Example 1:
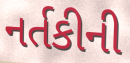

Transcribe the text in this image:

નર્તકીની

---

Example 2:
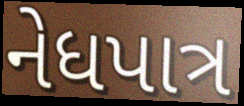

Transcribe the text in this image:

નેધપાત્ર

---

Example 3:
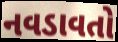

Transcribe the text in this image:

નવડાવતો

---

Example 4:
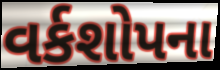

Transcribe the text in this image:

વર્કશોપના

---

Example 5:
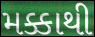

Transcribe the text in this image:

મક્કાથી